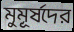
মুমূর্ষদের